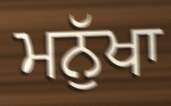
ਮਨੁੱਖਾ